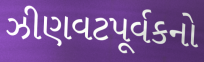
ઝીણવટપૂર્વકનો